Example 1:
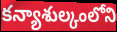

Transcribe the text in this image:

కన్యాశుల్కంలోని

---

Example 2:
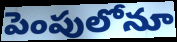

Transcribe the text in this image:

పెంపులోనూ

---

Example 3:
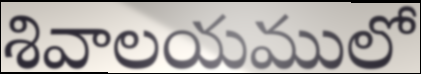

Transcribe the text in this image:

శివాలయములో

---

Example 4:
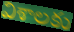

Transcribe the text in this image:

విశాలకు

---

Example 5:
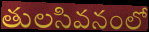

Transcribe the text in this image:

తులసివనంలో